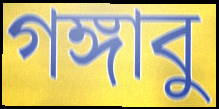
গঙ্গাবু